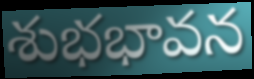
శుభభావన